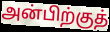
அன்பிற்குத்